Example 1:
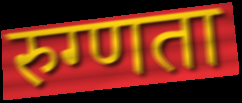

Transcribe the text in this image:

रुग्णता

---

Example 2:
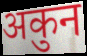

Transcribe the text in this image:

अकुन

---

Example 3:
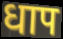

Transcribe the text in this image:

धाप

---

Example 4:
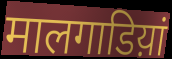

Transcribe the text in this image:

मालगाडिय़ां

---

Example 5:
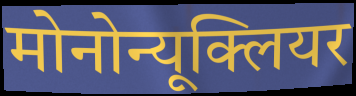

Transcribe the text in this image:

मोनोन्यूक्लियर